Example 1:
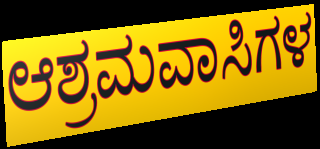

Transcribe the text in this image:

ಆಶ್ರಮವಾಸಿಗಳ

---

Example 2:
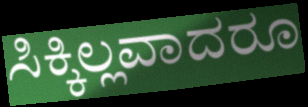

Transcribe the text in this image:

ಸಿಕ್ಕಿಲ್ಲವಾದರೂ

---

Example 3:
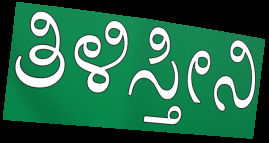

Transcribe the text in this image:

ತಿಳಿಸ್ತೀನಿ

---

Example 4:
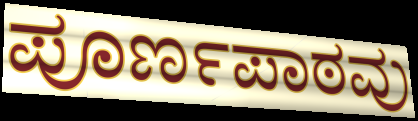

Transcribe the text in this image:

ಪೂರ್ಣಪಾಠವು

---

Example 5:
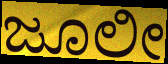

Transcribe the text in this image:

ಜೂಲೀ